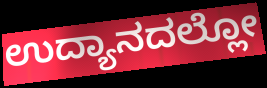
ಉದ್ಯಾನದಲ್ಲೋ